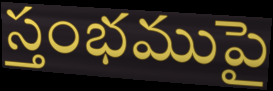
స్తంభముపై